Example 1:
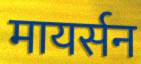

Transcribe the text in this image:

मायर्सन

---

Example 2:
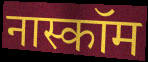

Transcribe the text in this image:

नास्कॉम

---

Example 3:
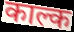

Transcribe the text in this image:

काल्क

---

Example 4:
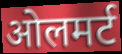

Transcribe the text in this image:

ओलमर्ट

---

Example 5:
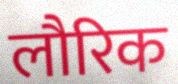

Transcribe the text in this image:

लौरिक